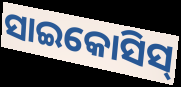
ସାଇକୋସିସ୍